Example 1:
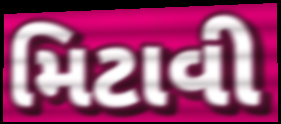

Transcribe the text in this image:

મિટાવી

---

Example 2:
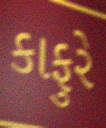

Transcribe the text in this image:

કાફુરે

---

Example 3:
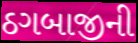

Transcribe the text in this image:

ઠગબાજીની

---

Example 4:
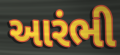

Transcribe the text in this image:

આરંભી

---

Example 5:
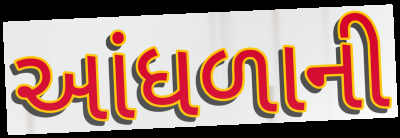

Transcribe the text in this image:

આંધળાની